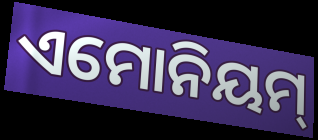
ଏମୋନିୟମ୍